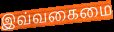
இவ்வகைமை